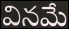
వినమే